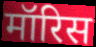
मॉरिस